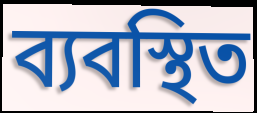
ব্যবস্থিত